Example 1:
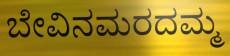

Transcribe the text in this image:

ಬೇವಿನಮರದಮ್ಮ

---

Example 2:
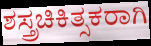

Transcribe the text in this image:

ಶಸ್ತ್ರಚಿಕಿತ್ಸಕರಾಗಿ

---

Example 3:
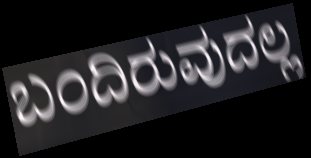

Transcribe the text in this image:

ಬಂದಿರುವುದಲ್ಲ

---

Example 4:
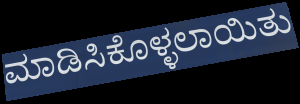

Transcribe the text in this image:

ಮಾಡಿಸಿಕೊಳ್ಳಲಾಯಿತು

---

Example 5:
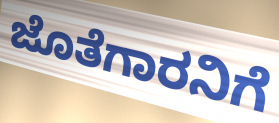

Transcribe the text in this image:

ಜೊತೆಗಾರನಿಗೆ